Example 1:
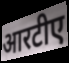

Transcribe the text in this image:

आरटीए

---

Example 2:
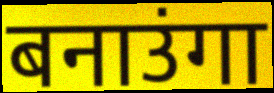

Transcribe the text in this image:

बनाउंगा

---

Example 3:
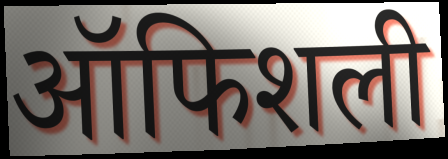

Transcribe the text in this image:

ऑफिशली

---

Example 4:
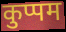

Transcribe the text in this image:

कुप्पम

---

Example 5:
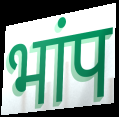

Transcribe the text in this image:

भांप